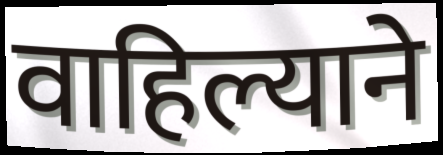
वाहिल्याने